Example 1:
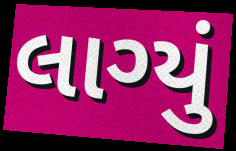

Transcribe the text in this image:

લાગ્યું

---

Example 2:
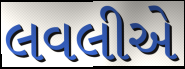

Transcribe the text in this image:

લવલીએ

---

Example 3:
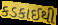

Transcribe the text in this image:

કડકાઈથી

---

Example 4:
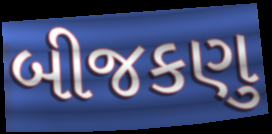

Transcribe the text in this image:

બીજકણુ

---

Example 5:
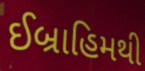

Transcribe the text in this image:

ઈબ્રાહિમથી